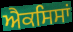
ਐਕਸਿਸਾਂ